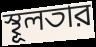
স্থূলতার